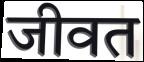
जीवत